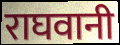
राघवानी